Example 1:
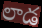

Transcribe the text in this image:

లాడ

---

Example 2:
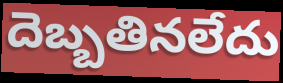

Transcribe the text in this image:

దెబ్బతినలేదు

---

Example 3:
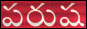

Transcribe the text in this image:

పరుష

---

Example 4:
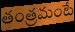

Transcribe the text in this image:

తంత్రమంటే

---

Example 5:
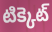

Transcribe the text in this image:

టిక్కెట్